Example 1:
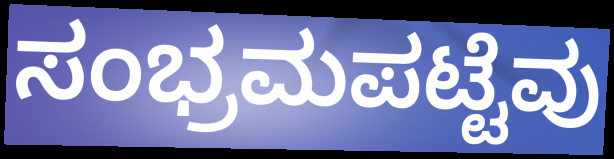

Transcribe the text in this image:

ಸಂಭ್ರಮಪಟ್ಟೆವು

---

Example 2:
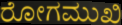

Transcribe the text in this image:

ರೋಗಮುಖಿ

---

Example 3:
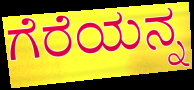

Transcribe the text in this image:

ಗೆರೆಯನ್ನ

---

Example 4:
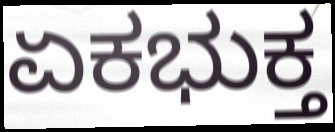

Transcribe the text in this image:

ಏಕಭುಕ್ತ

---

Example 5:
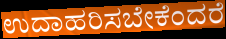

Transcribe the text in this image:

ಉದಾಹರಿಸಬೇಕೆಂದರೆ